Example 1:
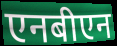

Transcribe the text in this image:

एनबीएन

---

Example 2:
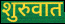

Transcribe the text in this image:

शुरुवात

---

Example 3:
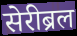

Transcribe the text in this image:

सेरीब्रल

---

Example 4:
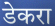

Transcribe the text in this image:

डेकरा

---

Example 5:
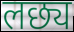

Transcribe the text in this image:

लछ्य